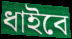
ধাইবে